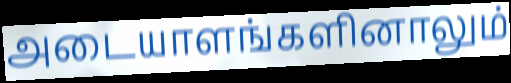
அடையாளங்களினாலும்